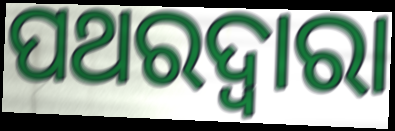
ପଥରଦ୍ୱାରା